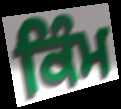
ਕਿੰਮ